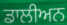
ਡਾਲੀਅਨ